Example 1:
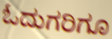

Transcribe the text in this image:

ಓದುಗರಿಗೂ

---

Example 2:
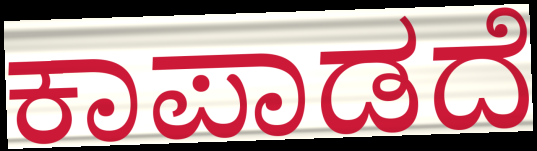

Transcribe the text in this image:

ಕಾಪಾಡದೆ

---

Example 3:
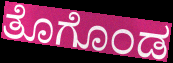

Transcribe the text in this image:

ತೊಗೊಂಡ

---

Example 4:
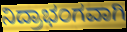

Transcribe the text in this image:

ನಿದ್ರಾಭಂಗವಾಗಿ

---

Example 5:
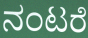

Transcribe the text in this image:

ನಂಟರೆ